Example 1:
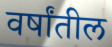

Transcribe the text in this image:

वर्षांतील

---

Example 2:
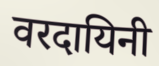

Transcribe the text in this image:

वरदायिनी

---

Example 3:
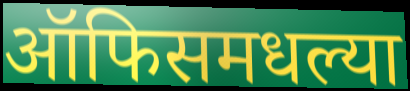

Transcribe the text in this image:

ऑफिसमधल्या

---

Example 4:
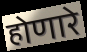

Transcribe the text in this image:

होणारे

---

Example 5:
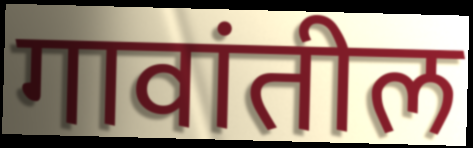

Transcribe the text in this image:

गावांतील